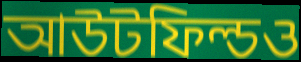
আউটফিল্ডও